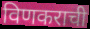
विणकराची